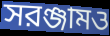
সরঞ্জামও